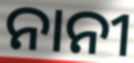
ନାନୀ